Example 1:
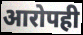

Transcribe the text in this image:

आरोपही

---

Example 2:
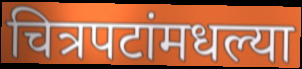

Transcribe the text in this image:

चित्रपटांमधल्या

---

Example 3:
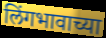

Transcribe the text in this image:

लिंगभावाच्या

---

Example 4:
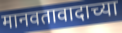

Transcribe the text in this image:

मानवतावादाच्या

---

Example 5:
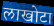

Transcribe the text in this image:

लाखोटा